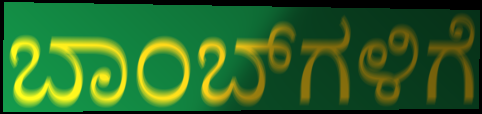
ಬಾಂಬ್‌ಗಳಿಗೆ